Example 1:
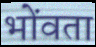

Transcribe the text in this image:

भोंवता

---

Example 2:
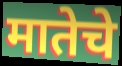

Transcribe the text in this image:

मातेचे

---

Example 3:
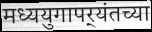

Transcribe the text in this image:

मध्ययुगापर्यंतच्या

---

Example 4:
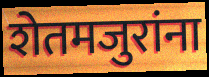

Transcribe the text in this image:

शेतमजुरांना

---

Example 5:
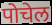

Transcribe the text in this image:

पोचेल